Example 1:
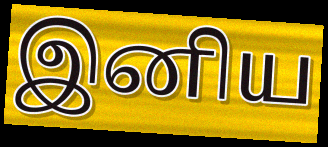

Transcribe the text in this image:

இனிய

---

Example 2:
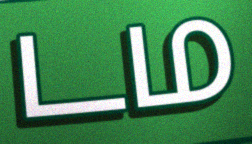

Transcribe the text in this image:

டம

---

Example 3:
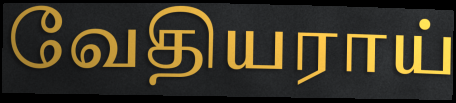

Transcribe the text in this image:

வேதியராய்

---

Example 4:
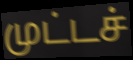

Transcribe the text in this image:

முட்டச்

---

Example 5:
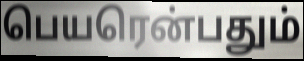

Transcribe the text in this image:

பெயரென்பதும்